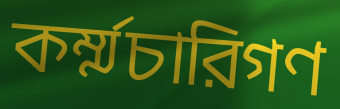
কর্ম্মচারিগণ